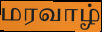
மரவாழ்